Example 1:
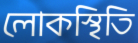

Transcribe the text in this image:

লোকস্থিতি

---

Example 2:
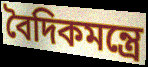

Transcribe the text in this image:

বৈদিকমন্ত্রে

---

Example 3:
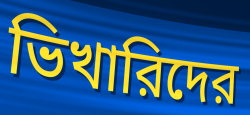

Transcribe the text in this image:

ভিখারিদের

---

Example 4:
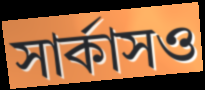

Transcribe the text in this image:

সার্কাসও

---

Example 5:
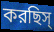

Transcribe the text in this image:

করছিস্